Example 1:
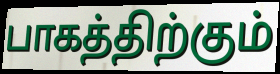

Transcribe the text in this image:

பாகத்திற்கும்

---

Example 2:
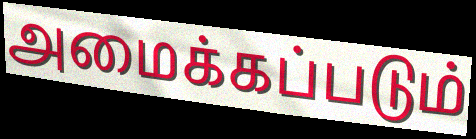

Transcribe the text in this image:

அமைக்கப்படும்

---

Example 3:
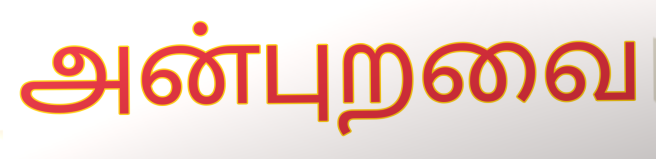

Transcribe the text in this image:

அன்புறவை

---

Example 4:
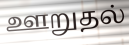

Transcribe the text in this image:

ஊறுதல்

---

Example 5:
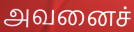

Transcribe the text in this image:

அவனைச்